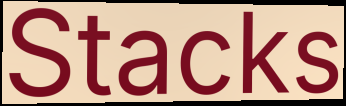
Stacks